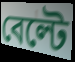
বেল্টে